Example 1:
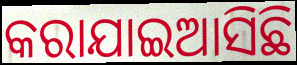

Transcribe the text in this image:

କରାଯାଇଆସିଛି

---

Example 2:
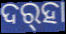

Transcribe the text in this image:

ଦର୍‌ହା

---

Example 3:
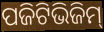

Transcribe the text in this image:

ପଜିଟିଭିଜିମ୍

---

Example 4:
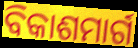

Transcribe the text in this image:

ବିକାଶମାର୍ଗ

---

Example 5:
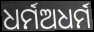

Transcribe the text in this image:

ଧର୍ମଅଧର୍ମ